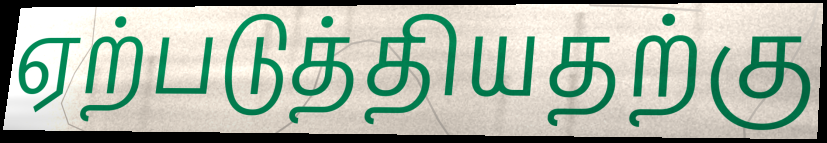
ஏற்படுத்தியதற்கு